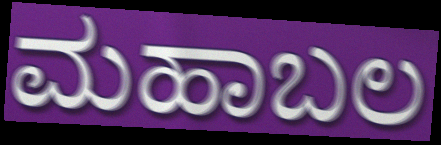
ಮಹಾಬಲ